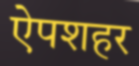
ऐपशहर